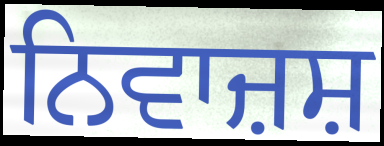
ਨਿਵਾਜ਼ਸ਼